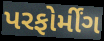
પરફોર્મીંગ